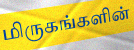
மிருகங்களின்